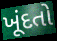
ખૂંદતો